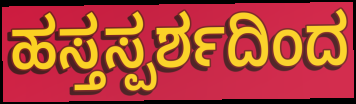
ಹಸ್ತಸ್ಪರ್ಶದಿಂದ